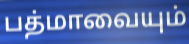
பத்மாவையும்